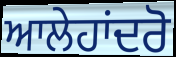
ਆਲੇਹਾਂਦਰੋ